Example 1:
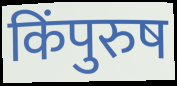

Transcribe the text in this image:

किंपुरुष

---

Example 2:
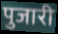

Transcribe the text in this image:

पुजारी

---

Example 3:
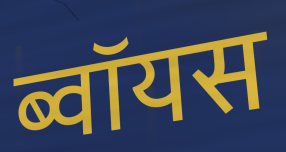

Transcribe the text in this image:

ब्वॉयस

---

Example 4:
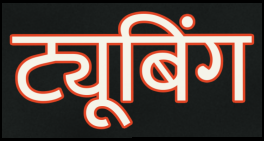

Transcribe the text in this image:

ट्यूबिंग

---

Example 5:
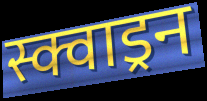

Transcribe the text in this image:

स्क्वाड्रन